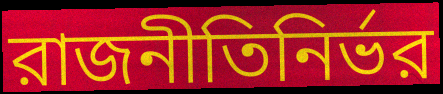
রাজনীতিনির্ভর